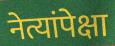
नेत्यांपेक्षा